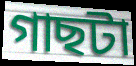
গাছটা